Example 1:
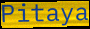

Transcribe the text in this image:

Pitaya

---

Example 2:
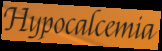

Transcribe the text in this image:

Hypocalcemia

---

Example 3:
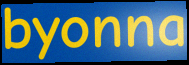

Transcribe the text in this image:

byonna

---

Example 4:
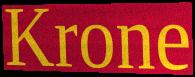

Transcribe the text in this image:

Krone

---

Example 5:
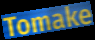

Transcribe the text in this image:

Tomake